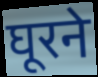
घूरने